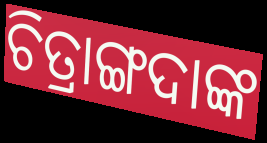
ଚିତ୍ରାଙ୍ଗଦାଙ୍କ